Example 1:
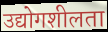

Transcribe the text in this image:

उद्योगशीलता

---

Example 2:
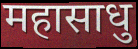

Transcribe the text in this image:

महासाधु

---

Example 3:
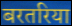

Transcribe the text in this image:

बरतरिया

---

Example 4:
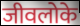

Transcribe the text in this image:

जीवलोके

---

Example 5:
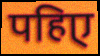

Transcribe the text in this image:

पहिए